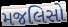
મજલિસો